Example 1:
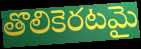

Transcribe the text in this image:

తొలికెరటమై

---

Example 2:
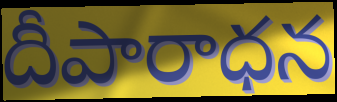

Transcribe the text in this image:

దీపారాధన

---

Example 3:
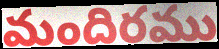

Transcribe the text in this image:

మందిరము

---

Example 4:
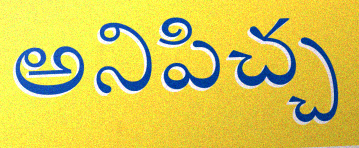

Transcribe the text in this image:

అనిపిచ్చ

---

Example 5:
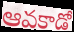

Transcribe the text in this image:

ఆవకాడో